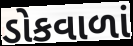
ડોકવાળાં